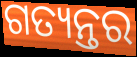
ଗତ୍ୟନ୍ତର